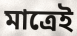
মাত্ৰেই